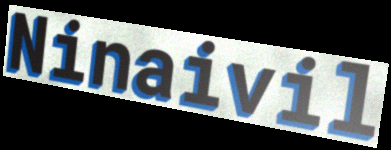
Ninaivil